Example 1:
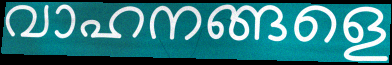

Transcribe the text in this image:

വാഹനങ്ങളെ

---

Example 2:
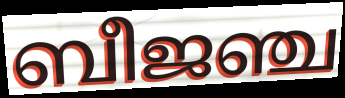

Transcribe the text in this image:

ബീജഞ്ച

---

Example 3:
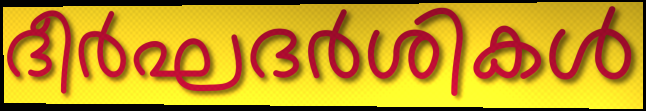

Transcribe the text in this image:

ദീർഘദർശികൾ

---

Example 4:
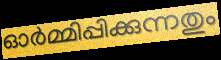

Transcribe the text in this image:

ഓർമ്മിപ്പിക്കുന്നതും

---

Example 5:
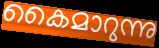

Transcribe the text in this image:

കൈമാറുന്നു